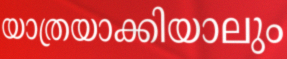
യാത്രയാക്കിയാലും